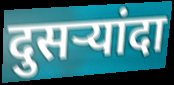
दुसऱ्यांदा